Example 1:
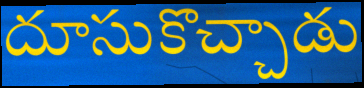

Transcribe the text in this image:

దూసుకొచ్చాడు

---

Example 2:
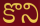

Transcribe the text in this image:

కొని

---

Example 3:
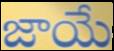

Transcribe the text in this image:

జాయే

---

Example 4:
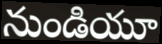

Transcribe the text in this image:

నుండియూ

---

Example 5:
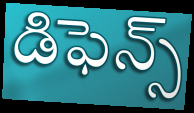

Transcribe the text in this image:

డిఫెన్స్